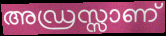
അഡ്രസ്സാണ്